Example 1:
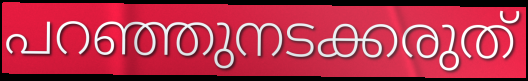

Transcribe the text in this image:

പറഞ്ഞുനടക്കരുത്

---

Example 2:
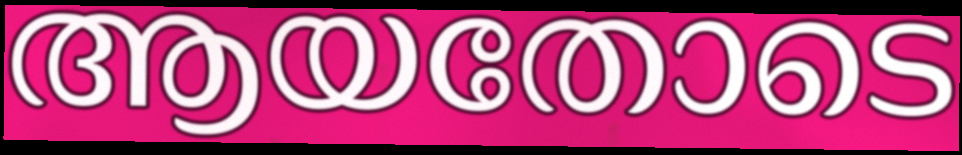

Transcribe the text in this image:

ആയതോടെ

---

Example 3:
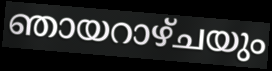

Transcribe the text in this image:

ഞായറാഴ്ചയും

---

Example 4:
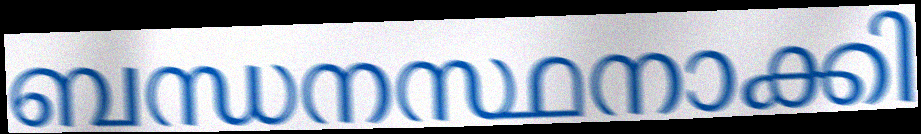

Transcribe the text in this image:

ബന്ധനസ്ഥനാക്കി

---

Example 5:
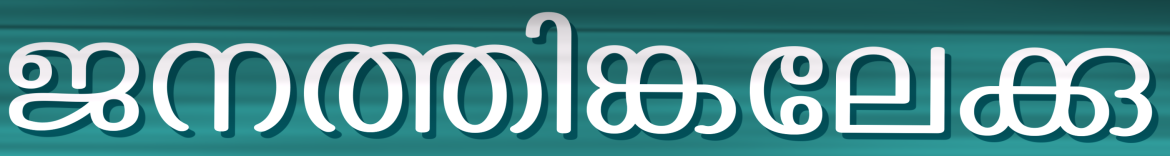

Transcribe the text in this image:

ജനത്തിങ്കലേക്കു